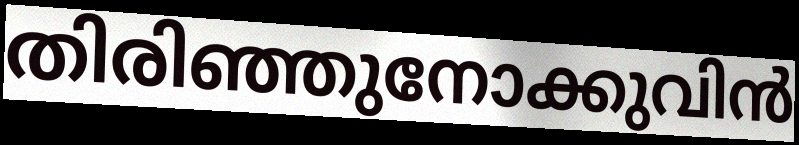
തിരിഞ്ഞുനോക്കുവിൻ